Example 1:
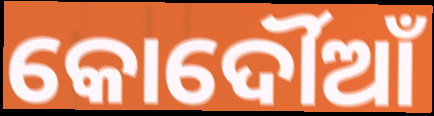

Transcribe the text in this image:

କୋର୍ଦୌଆଁ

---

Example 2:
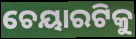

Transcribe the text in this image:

ଚେୟାରଟିକୁ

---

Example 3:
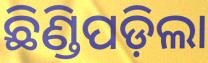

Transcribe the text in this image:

ଛିଣ୍ଡିପଡ଼ିଲା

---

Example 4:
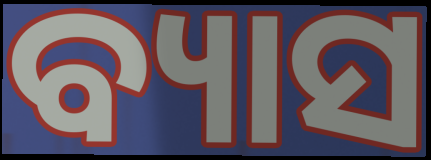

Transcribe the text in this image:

ବ୍ୟାସ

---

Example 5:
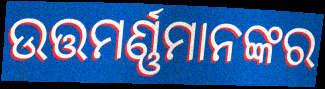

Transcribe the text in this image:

ଉତ୍ତମର୍ଣ୍ଣମାନଙ୍କର